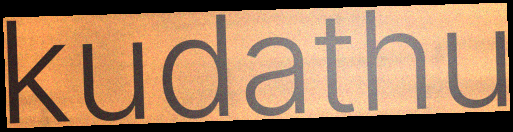
kudathu